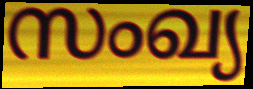
സംഖ്യ